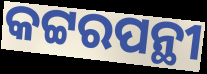
କଟ୍ଟରପନ୍ଥୀ